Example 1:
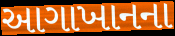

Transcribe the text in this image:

આગાખાનના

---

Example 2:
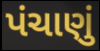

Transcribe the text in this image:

પંચાણું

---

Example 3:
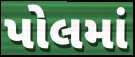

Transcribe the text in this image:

પોલમાં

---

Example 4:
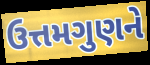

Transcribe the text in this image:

ઉત્તમગુણને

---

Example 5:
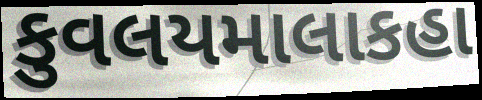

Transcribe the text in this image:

કુવલયમાલાકહા